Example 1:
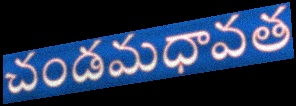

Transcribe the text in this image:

చండమధావత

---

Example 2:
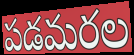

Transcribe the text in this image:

పడమరల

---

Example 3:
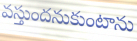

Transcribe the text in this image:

వస్తుందనుకుంటాను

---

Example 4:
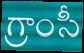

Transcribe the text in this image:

గ్రాంసీ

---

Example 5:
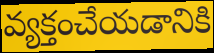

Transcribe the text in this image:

వ్యక్తంచేయడానికి